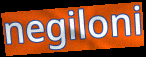
negiloni